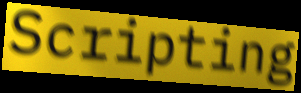
Scripting